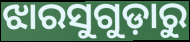
ଝାରସୁଗୁଡ଼ାରୁ